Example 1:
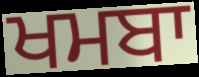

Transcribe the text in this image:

ਖਮਬਾ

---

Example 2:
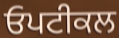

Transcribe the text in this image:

ਓਪਟੀਕਲ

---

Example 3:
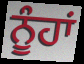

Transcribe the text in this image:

ਨੂੰਹਾਂ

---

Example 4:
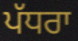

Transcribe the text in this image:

ਪੱਧਰਾ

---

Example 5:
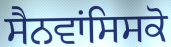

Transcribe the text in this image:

ਸੈਨਵਾਂਸਿਸਕੋ